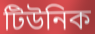
টিউনিক